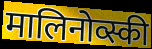
मालिनोव्स्की